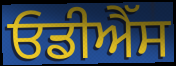
ਓਡੀਐੱਸ